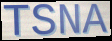
TSNA